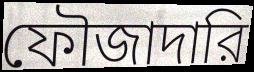
ফৌজাদারি